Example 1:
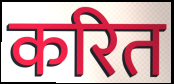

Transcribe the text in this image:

करित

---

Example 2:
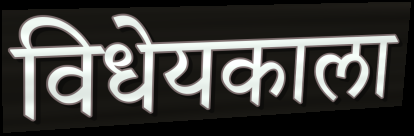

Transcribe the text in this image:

विधेयकाला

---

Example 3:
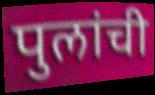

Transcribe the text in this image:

पुलांची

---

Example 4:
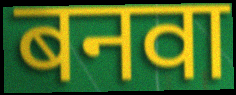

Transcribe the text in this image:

बनवा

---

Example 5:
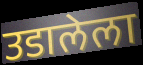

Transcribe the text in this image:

उडालेला